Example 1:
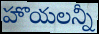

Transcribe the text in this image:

హొయలన్నీ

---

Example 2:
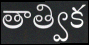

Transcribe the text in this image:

తాత్విక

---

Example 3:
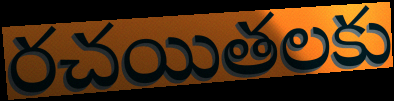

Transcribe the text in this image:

రచయితలకు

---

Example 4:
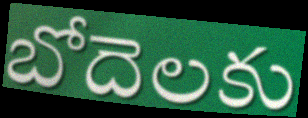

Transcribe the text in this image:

బోదెలకు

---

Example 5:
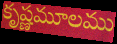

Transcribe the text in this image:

కృష్ణమూలము